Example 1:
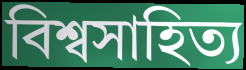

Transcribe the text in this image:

বিশ্বসাহিত্য়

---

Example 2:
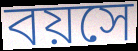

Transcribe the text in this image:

বয়সে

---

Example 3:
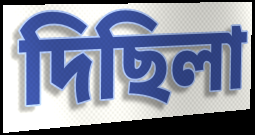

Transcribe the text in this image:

দিছিলা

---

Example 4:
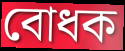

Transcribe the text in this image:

বোধক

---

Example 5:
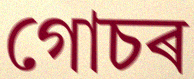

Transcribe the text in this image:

গোচৰ